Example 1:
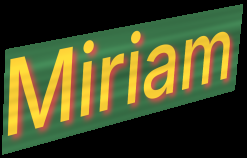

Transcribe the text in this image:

Miriam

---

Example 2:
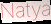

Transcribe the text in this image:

Natya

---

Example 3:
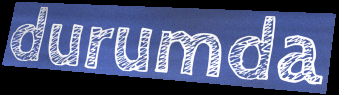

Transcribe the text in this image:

durumda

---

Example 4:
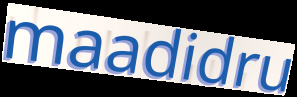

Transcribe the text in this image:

maadidru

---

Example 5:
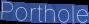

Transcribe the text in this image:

Porthole